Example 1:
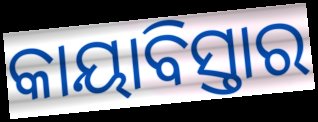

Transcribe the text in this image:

କାୟାବିସ୍ତାର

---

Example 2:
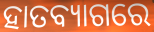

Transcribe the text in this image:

ହାତବ୍ୟାଗରେ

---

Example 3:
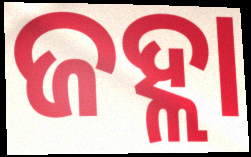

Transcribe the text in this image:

ଜହ୍ଲା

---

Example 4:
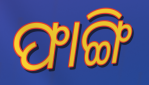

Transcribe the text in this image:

ଫାଙ୍ଗି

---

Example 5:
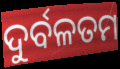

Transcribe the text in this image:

ଦୁର୍ବଳତମ